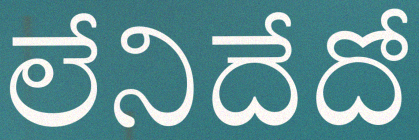
లేనిదేదో